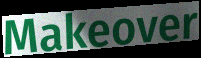
Makeover